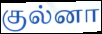
குல்னா